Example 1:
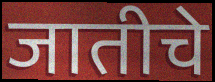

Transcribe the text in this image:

जातीचे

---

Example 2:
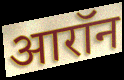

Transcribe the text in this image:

आरॉन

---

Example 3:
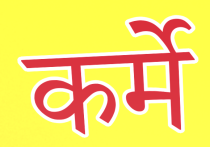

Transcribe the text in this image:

कर्मे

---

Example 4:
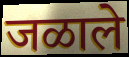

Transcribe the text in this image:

जळाले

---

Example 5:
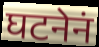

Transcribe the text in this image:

घटनेनं